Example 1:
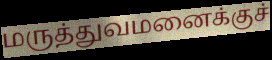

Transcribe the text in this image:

மருத்துவமனைக்குச்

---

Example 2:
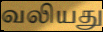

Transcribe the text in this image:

வலியது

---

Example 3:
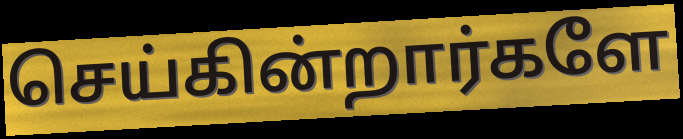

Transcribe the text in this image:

செய்கின்றார்களே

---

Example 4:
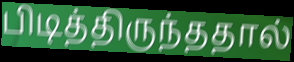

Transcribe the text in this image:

பிடித்திருந்ததால்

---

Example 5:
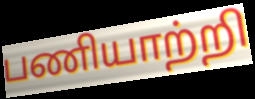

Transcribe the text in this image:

பணியாற்றி